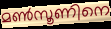
മൺസൂണിനെ